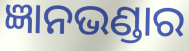
ଜ୍ଞାନଭଣ୍ଡାର